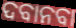
ଦବାନବା